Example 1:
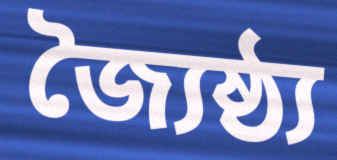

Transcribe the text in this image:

জ্যৈষ্ঠ্য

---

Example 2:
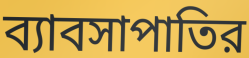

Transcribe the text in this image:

ব্যাবসাপাতির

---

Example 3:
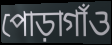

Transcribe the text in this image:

পোড়াগাঁও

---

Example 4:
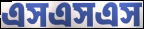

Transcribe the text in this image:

এসএসএস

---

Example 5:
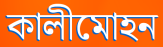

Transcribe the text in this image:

কালীমোহন